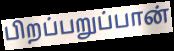
பிறப்பறுப்பான்